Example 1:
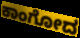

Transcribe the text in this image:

ಕಾಂಗೋದ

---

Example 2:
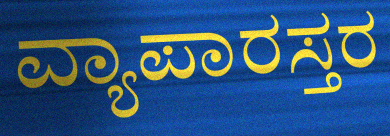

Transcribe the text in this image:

ವ್ಯಾಪಾರಸ್ತರ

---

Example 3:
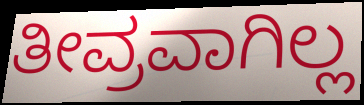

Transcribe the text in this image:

ತೀವ್ರವಾಗಿಲ್ಲ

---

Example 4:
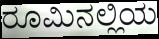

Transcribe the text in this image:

ರೂಮಿನಲ್ಲಿಯ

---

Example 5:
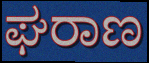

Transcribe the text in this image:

ಘರಾಣ